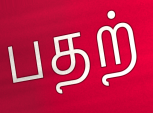
பதற்